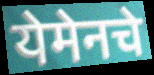
येमेनचे